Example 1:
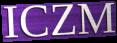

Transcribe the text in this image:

ICZM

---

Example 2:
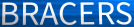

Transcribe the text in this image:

BRACERS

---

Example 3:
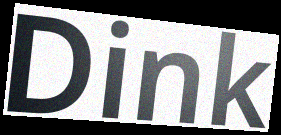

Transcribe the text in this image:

Dink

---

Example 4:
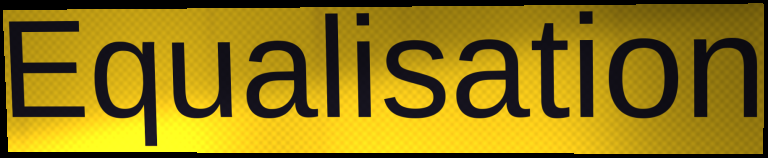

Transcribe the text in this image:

Equalisation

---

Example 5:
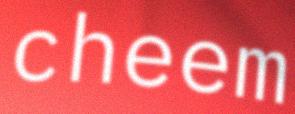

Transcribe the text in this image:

cheem